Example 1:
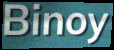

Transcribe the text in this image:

Binoy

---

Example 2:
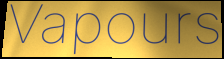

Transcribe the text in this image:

Vapours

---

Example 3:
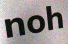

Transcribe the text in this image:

noh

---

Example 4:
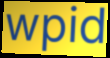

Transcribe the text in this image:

wpid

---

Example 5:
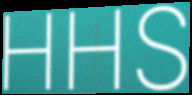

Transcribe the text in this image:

HHS